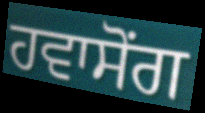
ਹਵਾਸੋਂਗ